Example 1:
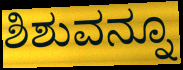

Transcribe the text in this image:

ಶಿಶುವನ್ನೂ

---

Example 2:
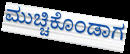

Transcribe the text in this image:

ಮುಚ್ಚಿಕೊಂಡಾಗ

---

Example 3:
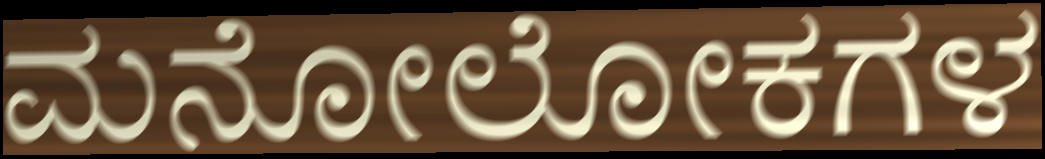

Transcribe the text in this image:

ಮನೋಲೋಕಗಳ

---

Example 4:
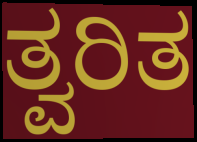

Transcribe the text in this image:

ತ್ವರಿತ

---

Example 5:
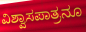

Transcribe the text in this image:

ವಿಶ್ವಾಸಪಾತ್ರನೂ